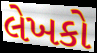
લેખકો